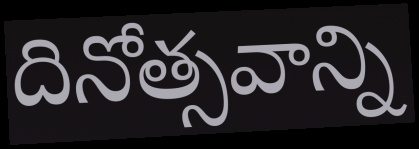
దినోత్సవాన్ని